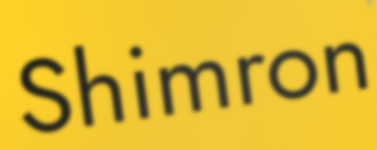
Shimron